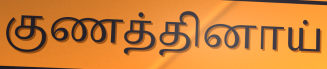
குணத்தினாய்